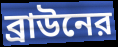
ব্রাউনের